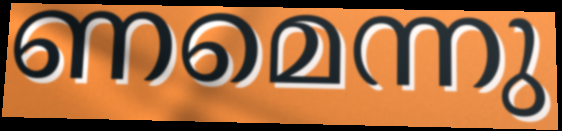
ണമെന്നു